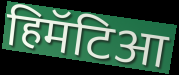
हिमॅटिआ